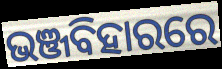
ଭଞ୍ଜବିହାରରେ